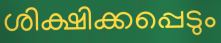
ശിക്ഷിക്കപ്പെടും